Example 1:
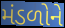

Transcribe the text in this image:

મંડળોને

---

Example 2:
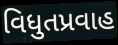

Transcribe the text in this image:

વિધુતપ્રવાહ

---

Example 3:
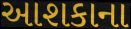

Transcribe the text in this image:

આશકાના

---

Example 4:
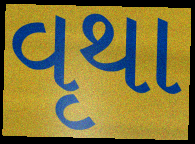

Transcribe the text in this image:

વૃથા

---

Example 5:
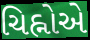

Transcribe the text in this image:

ચિહ્નોએ